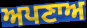
ਅਪਣਾਅ